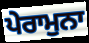
ਪੇਰਾਮੁਨਾ